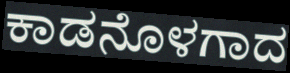
ಕಾಡನೊಳಗಾದ